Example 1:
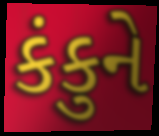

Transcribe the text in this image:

કંકુને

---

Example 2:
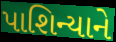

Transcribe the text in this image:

પાશિન્યાને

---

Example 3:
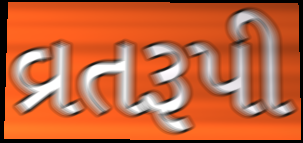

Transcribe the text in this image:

વ્રતરૂપી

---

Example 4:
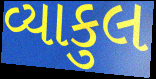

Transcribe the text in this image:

વ્યાકુલ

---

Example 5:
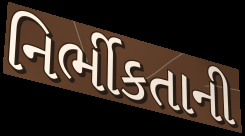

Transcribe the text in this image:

નિર્ભીકતાની